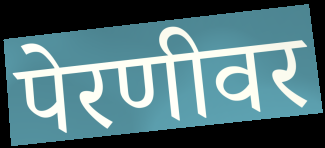
पेरणीवर